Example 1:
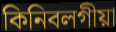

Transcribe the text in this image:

কিনিবলগীয়া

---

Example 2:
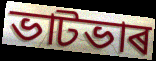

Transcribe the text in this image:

ভাটভাৰ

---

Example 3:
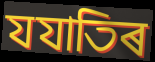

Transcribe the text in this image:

যযাতিৰ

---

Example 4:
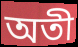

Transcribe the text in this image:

অতী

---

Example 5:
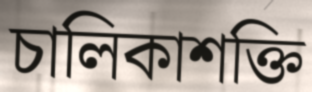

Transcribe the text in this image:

চালিকাশক্তি